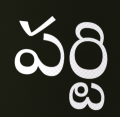
పర్టి